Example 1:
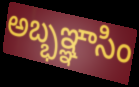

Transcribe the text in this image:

అబ్భఞ్ఞాసిం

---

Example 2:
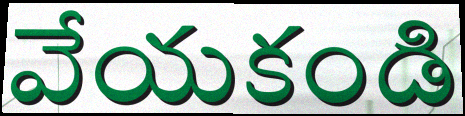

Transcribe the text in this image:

వేయకండి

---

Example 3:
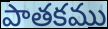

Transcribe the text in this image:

పాతకము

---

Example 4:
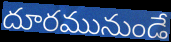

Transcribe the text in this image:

దూరమునుండే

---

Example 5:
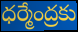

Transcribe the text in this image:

ధర్మేంద్రకు